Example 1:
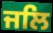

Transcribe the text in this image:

ਜਲਿ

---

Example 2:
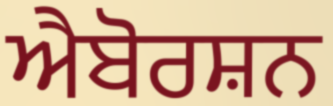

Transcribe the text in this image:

ਐਬੋਰਸ਼ਨ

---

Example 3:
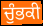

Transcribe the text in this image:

ਚੁੰਭਕੀ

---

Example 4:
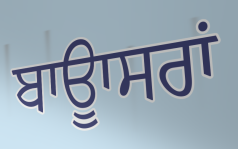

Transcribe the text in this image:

ਬਾਊਾਸਰਾਂ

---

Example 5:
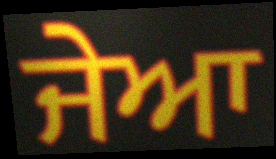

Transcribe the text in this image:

ਜੇਆ